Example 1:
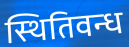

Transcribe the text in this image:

स्थितिवन्ध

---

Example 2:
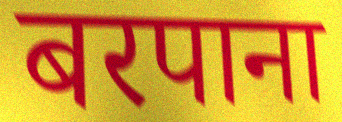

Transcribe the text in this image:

बरपाना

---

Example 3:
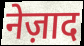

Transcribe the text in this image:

नेज़ाद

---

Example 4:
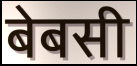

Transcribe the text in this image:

बेबसी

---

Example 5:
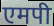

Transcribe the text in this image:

एमपी